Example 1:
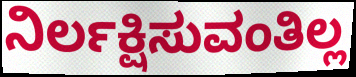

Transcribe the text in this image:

ನಿರ್ಲಕ್ಷಿಸುವಂತಿಲ್ಲ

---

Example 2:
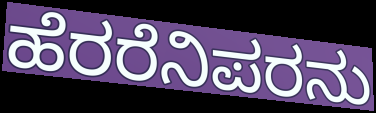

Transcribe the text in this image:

ಹೆರರೆನಿಪರನು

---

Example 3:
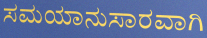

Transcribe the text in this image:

ಸಮಯಾನುಸಾರವಾಗಿ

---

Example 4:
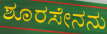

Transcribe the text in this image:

ಶೂರಸೇನನು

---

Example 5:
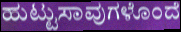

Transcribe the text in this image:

ಹುಟ್ಟುಸಾವುಗಳೊಂದೆ